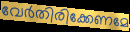
വേർതിരിക്കേണമേ